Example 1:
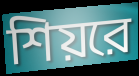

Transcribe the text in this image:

শিয়রে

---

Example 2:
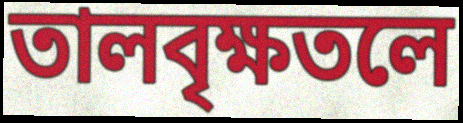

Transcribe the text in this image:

তালবৃক্ষতলে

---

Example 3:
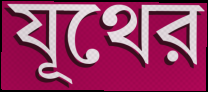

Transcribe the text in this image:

যূথের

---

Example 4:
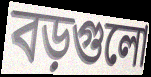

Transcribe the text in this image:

বড়গুলো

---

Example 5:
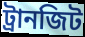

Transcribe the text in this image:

ট্রানজিট